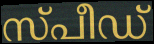
സ്പീഡ്